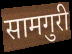
सामगुरी